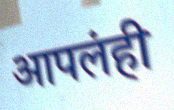
आपलंही